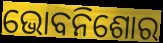
ଭୋବନିଶୋର